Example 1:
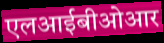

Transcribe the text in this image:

एलआईबीओआर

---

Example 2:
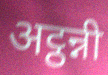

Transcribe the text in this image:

अट्ठन्नी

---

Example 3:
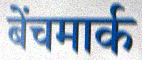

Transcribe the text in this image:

बेंचमार्क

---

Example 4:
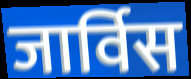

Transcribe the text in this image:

जार्विस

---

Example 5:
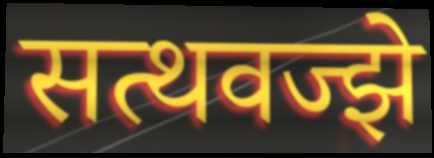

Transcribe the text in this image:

सत्थवज्झे